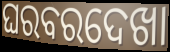
ଘରବରଦେଖା